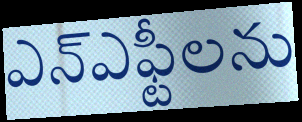
ఎన్ఎఫ్టీలను